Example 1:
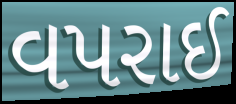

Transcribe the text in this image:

વપરાઈ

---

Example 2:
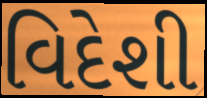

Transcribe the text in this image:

વિદેશી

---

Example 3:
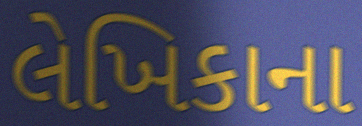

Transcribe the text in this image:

લેખિકાના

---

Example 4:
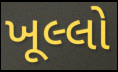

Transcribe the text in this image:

ખૂલ્લો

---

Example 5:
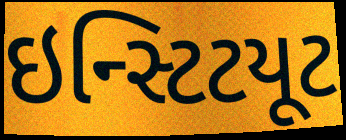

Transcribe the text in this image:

ઇન્સ્ટિટયૂટ